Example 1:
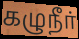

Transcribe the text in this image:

கழுநீர்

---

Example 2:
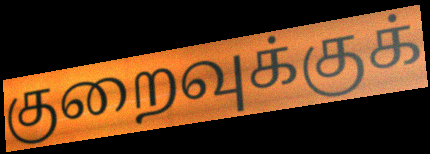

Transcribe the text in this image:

குறைவுக்குக்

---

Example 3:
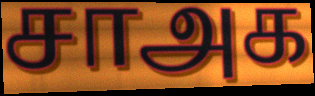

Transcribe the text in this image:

சாஅக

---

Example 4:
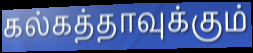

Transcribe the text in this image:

கல்கத்தாவுக்கும்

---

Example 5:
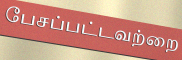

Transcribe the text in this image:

பேசப்பட்டவற்றை